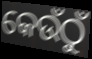
କେଉଁଠୁଁ